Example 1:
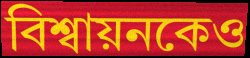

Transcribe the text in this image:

বিশ্বায়নকেও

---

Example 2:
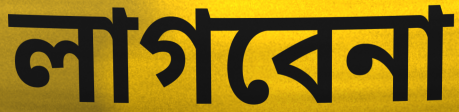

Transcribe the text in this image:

লাগবেনা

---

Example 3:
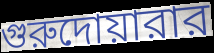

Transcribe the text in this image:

গুরুদোয়ারার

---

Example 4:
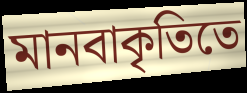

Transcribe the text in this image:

মানবাকৃতিতে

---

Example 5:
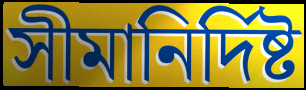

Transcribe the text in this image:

সীমানির্দিষ্ট